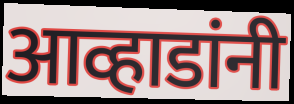
आव्हाडांनी